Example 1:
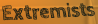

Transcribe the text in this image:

Extremists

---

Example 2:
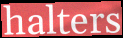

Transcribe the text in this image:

halters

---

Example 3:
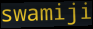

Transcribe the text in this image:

swamiji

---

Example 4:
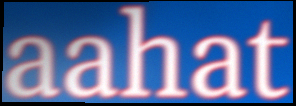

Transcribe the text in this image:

aahat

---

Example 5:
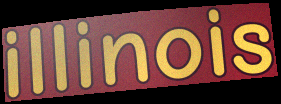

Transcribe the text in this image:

illinois